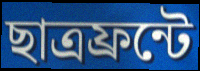
ছাত্রফ্রন্টে